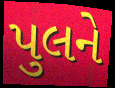
પુલને